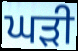
ਘਡ਼ੀ